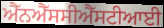
ਐੱਨਐੱਸਸੀਐੱਸਟੀਆਈ